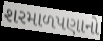
શરમાળપણાનો